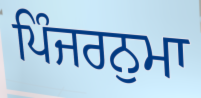
ਪਿੰਜਰਨੁਮਾ